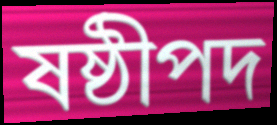
ষষ্ঠীপদ